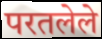
परतलेले